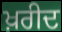
ਖ਼ਰੀਦ